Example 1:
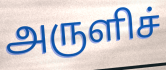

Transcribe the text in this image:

அருளிச்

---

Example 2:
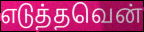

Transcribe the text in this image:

எடுத்தவென்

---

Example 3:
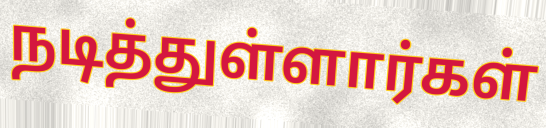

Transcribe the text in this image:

நடித்துள்ளார்கள்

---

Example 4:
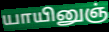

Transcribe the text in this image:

யாயினுஞ்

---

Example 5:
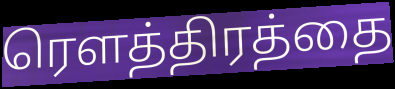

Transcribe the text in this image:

ரௌத்திரத்தை